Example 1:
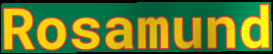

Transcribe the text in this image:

Rosamund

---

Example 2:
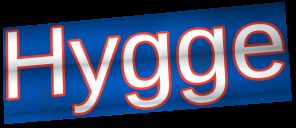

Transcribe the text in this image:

Hygge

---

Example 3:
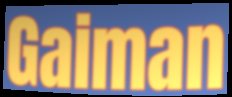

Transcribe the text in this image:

Gaiman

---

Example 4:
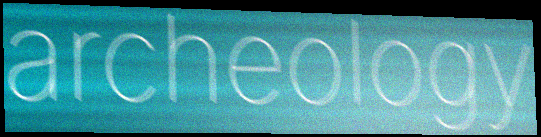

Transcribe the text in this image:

archeology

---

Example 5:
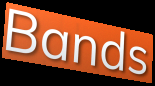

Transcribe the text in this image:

Bands